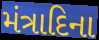
મંત્રાદિના